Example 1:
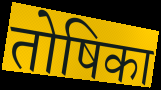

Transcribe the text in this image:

तोषिका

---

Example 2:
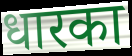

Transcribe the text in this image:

धारका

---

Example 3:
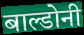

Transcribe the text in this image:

बाल्डोनी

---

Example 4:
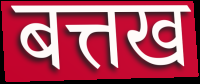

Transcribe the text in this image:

बत्तख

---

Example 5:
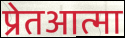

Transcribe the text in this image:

प्रेतआत्मा